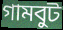
গামবুট